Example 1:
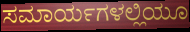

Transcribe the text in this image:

ಸಮಾರ್ಯಗಳಲ್ಲಿಯೂ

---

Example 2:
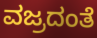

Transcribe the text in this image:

ವಜ್ರದಂತೆ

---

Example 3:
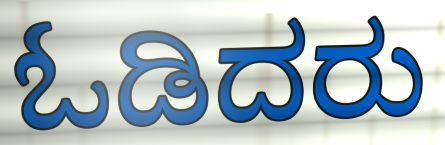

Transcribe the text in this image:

ಓಡಿದರು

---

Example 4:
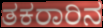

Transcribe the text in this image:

ತಕರಾರಿನ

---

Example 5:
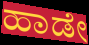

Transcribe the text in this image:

ಹಾಡೇ